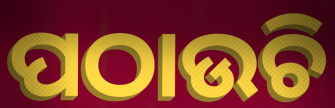
ପଠାଉଚି